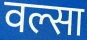
वल्सा